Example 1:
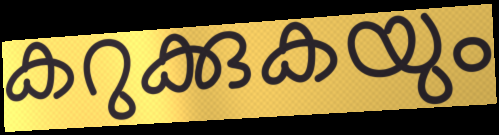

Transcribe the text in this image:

കറുക്കുകയും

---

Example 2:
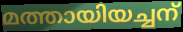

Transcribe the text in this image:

മത്തായിയച്ചന്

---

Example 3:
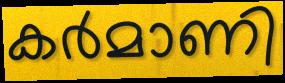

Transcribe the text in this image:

കർമാണി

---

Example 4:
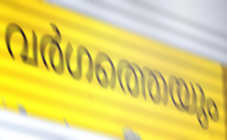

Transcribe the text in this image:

വർഗത്തെയും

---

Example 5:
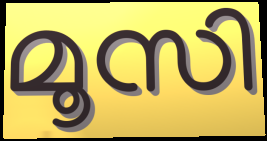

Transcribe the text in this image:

മൂസി